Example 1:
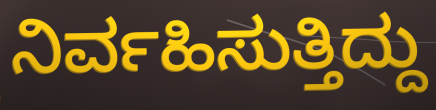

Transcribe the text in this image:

ನಿರ್ವಹಿಸುತ್ತಿದ್ದು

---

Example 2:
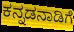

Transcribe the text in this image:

ಕನ್ನಡನಾಡಿಗೆ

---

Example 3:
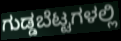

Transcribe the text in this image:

ಗುಡ್ಡಬೆಟ್ಟಗಳಲ್ಲಿ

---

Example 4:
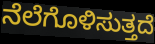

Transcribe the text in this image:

ನೆಲೆಗೊಳಿಸುತ್ತದೆ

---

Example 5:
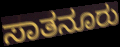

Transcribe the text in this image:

ಸಾತನೂರು